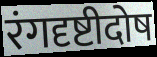
रंगदृष्टीदोष